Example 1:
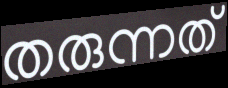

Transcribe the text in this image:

തരുന്നത്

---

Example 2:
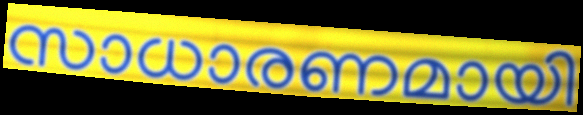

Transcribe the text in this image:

സാധാരണമായി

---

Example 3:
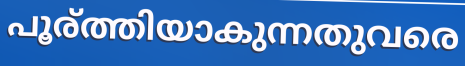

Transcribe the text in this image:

പൂര്ത്തിയാകുന്നതുവരെ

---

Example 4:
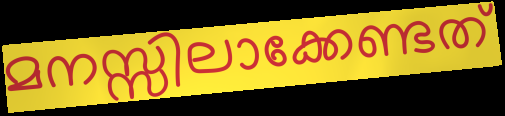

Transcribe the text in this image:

മനസ്സിലാക്കേണ്ടത്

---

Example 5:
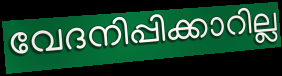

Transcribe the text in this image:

വേദനിപ്പിക്കാറില്ല